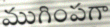
ముగింపగా